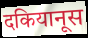
दकियानूस